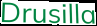
Drusilla